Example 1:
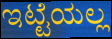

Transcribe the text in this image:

ಇಟ್ಟೆಯಲ್ಲ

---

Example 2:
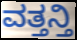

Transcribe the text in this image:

ವತ್ತನ್ತಿ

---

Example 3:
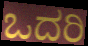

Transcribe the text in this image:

ಒದರಿ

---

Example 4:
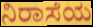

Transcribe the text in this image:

ನಿರಾಸೆಯ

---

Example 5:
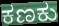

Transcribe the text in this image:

ಕಣಕು